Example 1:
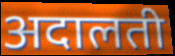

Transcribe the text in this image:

अदालती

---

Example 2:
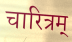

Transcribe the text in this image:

चारित्रम्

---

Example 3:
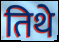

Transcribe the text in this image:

तिथे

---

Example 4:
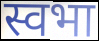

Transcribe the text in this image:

स्वभा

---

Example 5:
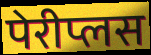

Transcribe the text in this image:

पेरीप्लस